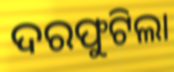
ଦରଫୁଟିଲା